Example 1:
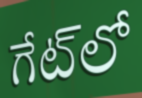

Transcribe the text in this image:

గేట్‌లో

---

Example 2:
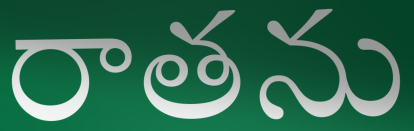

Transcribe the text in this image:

రాతను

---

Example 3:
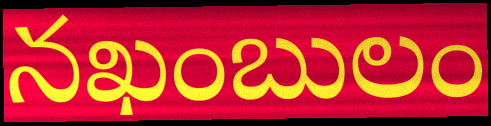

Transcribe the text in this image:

నఖంబులం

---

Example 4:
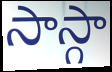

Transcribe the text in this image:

సాస్గా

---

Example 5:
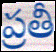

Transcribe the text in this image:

ప్రతీ